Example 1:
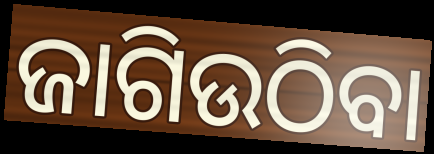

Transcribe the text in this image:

ଜାଗିଉଠିବା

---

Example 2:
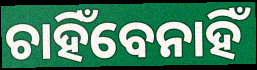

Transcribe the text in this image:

ଚାହିଁବେନାହିଁ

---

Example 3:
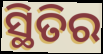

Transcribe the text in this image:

ସ୍ଥିତିର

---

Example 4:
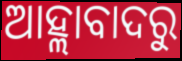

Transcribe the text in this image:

ଆହ୍ଲାବାଦରୁ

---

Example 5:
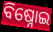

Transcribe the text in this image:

ବିଷ୍ନୋଇ